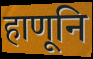
हाणूनि